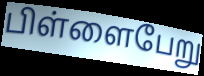
பிள்ளைபேறு